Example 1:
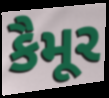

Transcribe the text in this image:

કૈમૂર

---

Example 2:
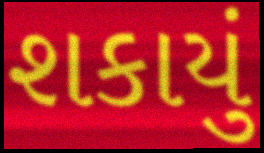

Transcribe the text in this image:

શકાયું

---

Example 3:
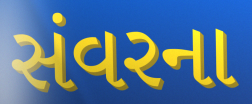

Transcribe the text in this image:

સંવરના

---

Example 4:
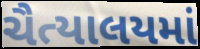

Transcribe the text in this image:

ચૈત્યાલયમાં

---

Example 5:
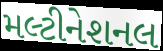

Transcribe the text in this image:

મલ્ટીનેશનલ